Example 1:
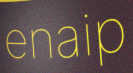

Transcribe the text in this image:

enaip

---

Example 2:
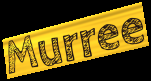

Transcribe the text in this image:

Murree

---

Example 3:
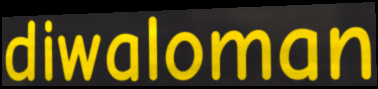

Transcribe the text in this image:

diwaloman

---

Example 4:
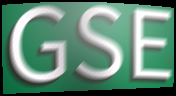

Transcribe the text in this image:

GSE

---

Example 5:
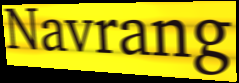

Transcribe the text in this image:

Navrang